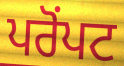
ਪਰੋਂਪਟ